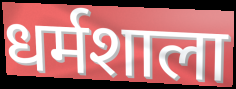
धर्मशाला